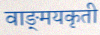
वाङ्‌मयकृती